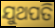
ଯୁଥପତି